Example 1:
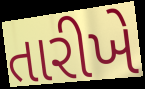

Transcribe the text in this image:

તારીખે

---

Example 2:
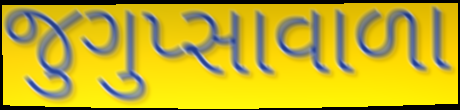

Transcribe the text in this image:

જુગુપ્સાવાળા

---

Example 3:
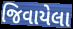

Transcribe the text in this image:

જિવાયેલા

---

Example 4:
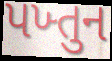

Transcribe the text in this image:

પખ્તુન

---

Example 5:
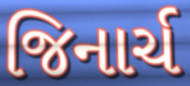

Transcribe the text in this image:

જિનાર્ચ